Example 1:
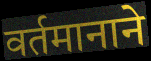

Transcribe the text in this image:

वर्तमानाने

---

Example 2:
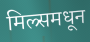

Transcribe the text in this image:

मिल्समधून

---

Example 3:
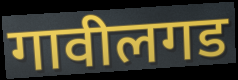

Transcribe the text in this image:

गावीलगड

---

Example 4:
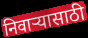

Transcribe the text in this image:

निवाऱ्यासाठी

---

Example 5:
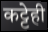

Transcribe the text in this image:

कट्टेही